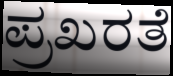
ಪ್ರಖರತೆ